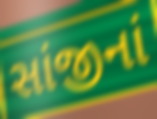
સાંજીનાં